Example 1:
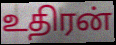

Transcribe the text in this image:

உதிரன்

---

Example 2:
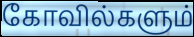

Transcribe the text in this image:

கோவில்களும்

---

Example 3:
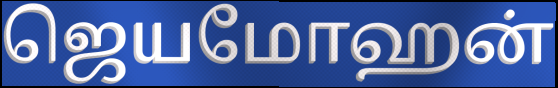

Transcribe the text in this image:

ஜெயமோஹன்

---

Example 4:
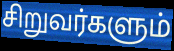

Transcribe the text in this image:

சிறுவர்களும்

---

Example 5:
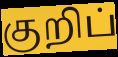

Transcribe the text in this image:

குறிப்